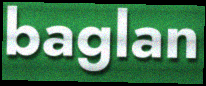
baglan